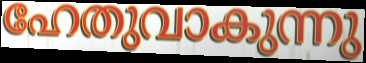
ഹേതുവാകുന്നു